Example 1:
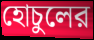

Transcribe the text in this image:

হোচুলের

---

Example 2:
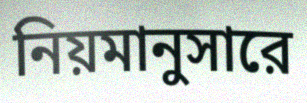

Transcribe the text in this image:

নিয়মানুসারে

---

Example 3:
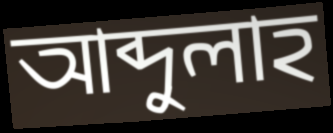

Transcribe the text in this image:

আব্দুলাহ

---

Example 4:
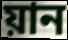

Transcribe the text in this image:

য়ান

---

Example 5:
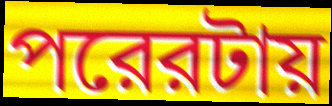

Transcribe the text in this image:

পরেরটায়